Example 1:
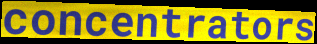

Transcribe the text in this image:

concentrators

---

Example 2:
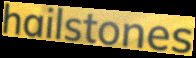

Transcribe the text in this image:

hailstones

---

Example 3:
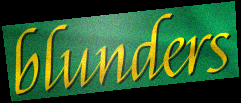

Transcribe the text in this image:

blunders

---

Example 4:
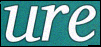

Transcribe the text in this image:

ure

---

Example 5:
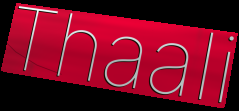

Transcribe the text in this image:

Thaali